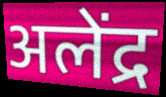
अलेंद्र